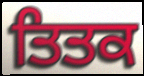
ਤਿਤਕ